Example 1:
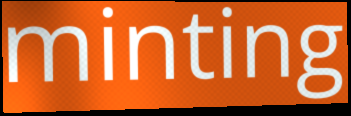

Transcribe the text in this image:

minting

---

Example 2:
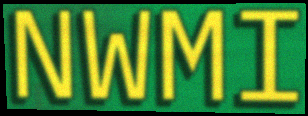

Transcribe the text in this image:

NWMI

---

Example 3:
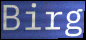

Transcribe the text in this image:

Birg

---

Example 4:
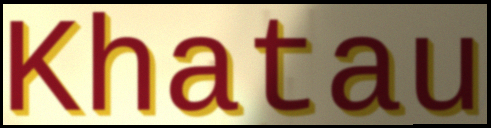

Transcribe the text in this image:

Khatau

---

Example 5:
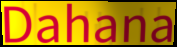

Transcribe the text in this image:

Dahana